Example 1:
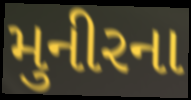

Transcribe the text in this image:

મુનીરના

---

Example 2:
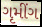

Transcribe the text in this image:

ગૃમીંગ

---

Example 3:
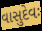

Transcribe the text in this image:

વાસુદેવઃ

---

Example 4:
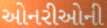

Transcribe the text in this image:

ઓનરીઓની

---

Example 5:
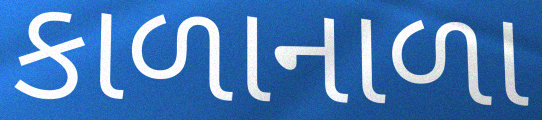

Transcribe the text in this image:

કાળાનાળા